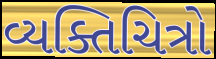
વ્યક્તિચિત્રો